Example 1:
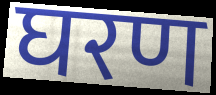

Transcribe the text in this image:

घरण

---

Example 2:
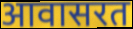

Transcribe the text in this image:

आवासरत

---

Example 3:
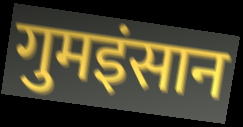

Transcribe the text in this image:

गुमइंसान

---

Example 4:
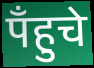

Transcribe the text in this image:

पँहुचे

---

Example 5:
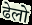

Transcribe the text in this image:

ढेलो